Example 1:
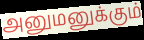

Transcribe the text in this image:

அனுமனுக்கும்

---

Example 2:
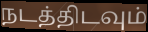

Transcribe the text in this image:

நடத்திடவும்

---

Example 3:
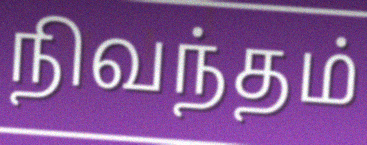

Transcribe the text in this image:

நிவந்தம்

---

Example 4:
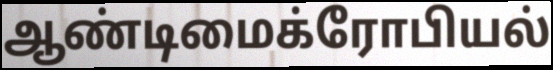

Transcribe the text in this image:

ஆண்டிமைக்ரோபியல்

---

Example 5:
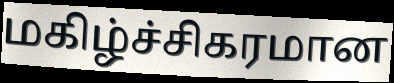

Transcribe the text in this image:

மகிழ்ச்சிகரமான